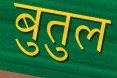
बुतुल